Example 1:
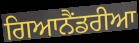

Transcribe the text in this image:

ਗਿਆਨੈਂਡਰੀਆ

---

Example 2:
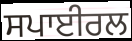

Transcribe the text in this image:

ਸਪਾਈਰਲ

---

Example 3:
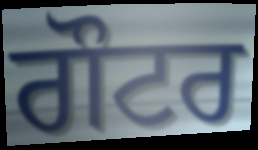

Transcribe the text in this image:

ਗੌਟਰ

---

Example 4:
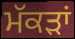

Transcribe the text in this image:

ਮੱਕੜਾਂ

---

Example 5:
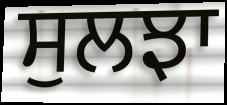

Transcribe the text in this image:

ਸੁਲਝਾ